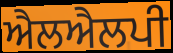
ਐਲਐਲਪੀ